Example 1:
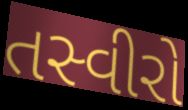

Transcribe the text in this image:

તસ્વીરો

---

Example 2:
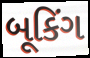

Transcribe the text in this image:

બૂકિંગ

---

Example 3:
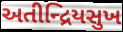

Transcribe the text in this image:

અતીન્દ્રિયસુખ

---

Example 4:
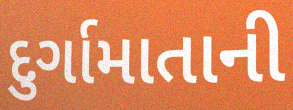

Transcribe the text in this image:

દુર્ગામાતાની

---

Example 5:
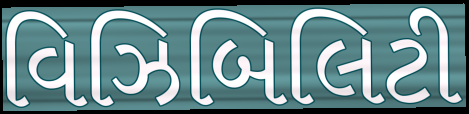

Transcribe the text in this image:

વિઝિબિલિટી